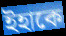
ইহাকে